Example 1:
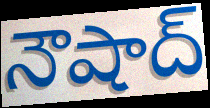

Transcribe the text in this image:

నౌషాద్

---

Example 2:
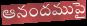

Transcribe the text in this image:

ఆనందముపై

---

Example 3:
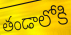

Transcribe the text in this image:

తండాలోకి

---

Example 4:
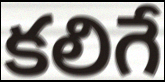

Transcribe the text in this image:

కలిగే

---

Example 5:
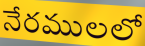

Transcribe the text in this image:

నేరములలో